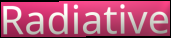
Radiative